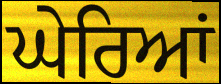
ਘੇਰਿਆਂ